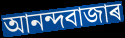
আনন্দবাজাৰ